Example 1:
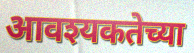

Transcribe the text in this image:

आवश्यकतेच्या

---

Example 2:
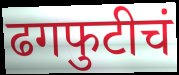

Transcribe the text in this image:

ढगफुटीचं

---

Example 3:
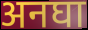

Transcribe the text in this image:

अनघा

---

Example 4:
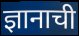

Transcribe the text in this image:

ज्ञानाची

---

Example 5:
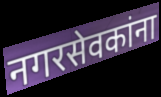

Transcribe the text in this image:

नगरसेवकांना